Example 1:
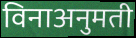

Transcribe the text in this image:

विनाअनुमती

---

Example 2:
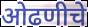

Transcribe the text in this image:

ओढणीचे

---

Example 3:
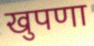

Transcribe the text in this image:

खुपणा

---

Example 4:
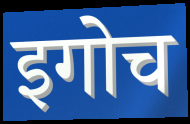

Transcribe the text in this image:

इगोच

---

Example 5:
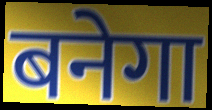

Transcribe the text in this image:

बनेगा